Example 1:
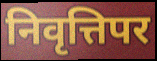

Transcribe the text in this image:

निवृत्तिपर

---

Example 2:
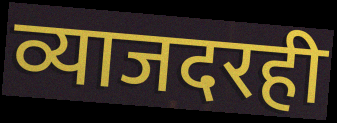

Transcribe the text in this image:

व्याजदरही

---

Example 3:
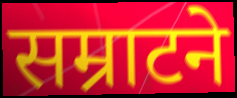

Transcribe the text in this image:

सम्राटने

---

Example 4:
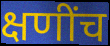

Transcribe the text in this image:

क्षणींच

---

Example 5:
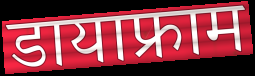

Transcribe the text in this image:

डायाफ्राम